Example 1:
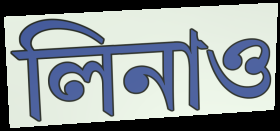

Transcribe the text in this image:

লিনাও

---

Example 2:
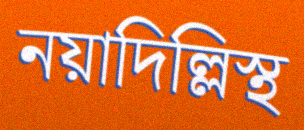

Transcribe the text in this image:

নয়াদিল্লিস্থ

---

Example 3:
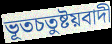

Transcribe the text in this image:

ভূতচতুষ্টয়বাদী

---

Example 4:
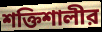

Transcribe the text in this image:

শক্তিশালীর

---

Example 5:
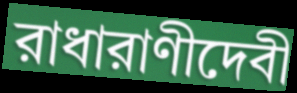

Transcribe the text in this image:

রাধারাণীদেবী